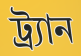
ট্র্যান